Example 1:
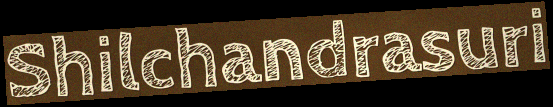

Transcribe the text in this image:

Shilchandrasuri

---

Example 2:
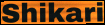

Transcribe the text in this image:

Shikari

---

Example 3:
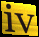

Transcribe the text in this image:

iv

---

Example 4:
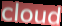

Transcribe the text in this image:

cloud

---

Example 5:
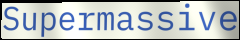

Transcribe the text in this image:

Supermassive